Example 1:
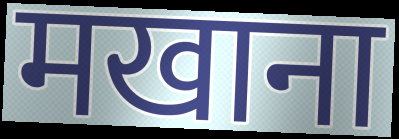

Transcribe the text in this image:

मखाना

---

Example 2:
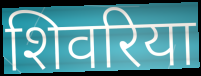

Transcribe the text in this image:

शिवरिया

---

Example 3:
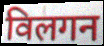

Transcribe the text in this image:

विलगन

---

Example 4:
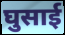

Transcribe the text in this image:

घुसाई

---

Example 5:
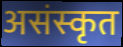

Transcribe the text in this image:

असंस्कृत